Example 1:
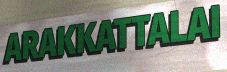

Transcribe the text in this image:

ARAKKATTALAI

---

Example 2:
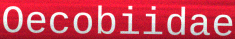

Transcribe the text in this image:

Oecobiidae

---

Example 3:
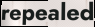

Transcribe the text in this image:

repealed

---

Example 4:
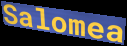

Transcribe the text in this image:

Salomea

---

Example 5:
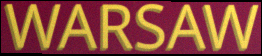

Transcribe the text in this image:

WARSAW